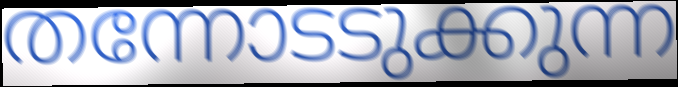
തന്നോടടുക്കുന്ന